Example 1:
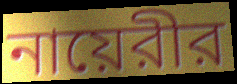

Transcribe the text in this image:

নায়েরীর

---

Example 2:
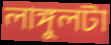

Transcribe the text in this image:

লাঙ্গুলটা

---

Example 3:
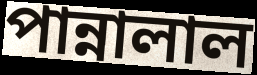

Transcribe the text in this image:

পান্নালাল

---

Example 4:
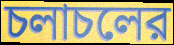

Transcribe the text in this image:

চলাচলের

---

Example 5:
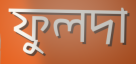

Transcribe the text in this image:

ফুলদা